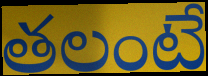
తలంటే